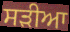
ਸੜੀਆ